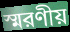
স্মরণীয়